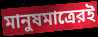
মানুষমাত্রেরই